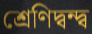
শ্রেণিদ্বন্দ্ব